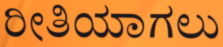
ರೀತಿಯಾಗಲು